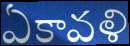
ఏకావళి